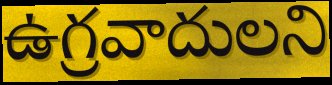
ఉగ్రవాదులని